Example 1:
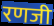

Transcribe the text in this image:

रणजी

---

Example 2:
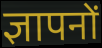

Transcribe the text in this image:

ज्ञापनों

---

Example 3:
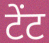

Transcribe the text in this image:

टेंट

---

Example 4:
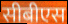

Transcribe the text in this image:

सीबीएस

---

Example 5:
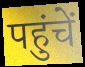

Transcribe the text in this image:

पहुंचें